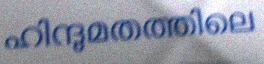
ഹിന്ദുമതത്തിലെ